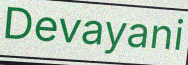
Devayani